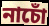
নাচোঁ